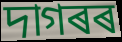
দাগৰৰ